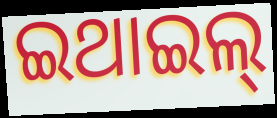
ଇଥାଇଲ୍